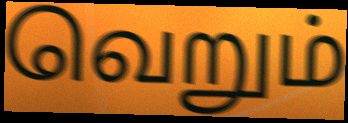
வெறும்